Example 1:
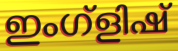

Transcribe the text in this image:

ഇംഗ്ളിഷ്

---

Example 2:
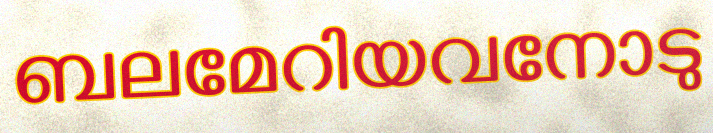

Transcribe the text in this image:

ബലമേറിയവനോടു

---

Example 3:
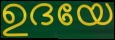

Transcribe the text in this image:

ഉദയേ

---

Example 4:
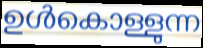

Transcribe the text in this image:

ഉൾകൊള്ളുന്ന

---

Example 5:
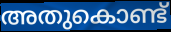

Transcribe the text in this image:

അതുകൊണ്ട്